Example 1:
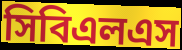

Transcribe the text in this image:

সিবিএলএস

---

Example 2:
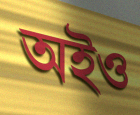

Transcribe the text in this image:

অইও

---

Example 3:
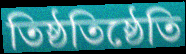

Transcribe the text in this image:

তিষ্ঠতিষ্ঠেতি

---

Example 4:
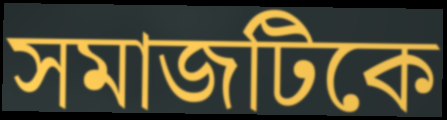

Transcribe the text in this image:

সমাজটিকে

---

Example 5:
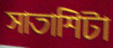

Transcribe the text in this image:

সাতাশিটা